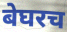
बेघरच